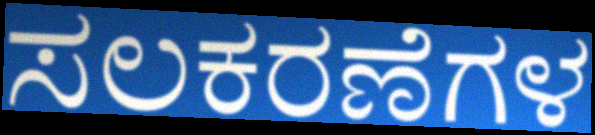
ಸಲಕರಣೆಗಳ